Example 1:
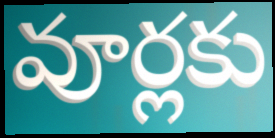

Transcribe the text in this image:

వూర్లకు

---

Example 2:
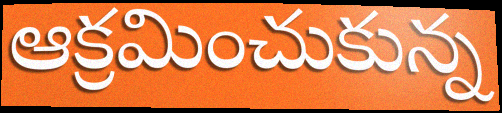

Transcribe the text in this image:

ఆక్రమించుకున్న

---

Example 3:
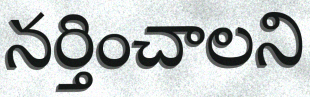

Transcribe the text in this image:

నర్తించాలని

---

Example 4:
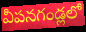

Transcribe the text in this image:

వీపనగండ్లలో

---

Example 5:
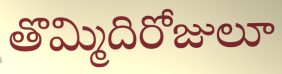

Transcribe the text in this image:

తొమ్మిదిరోజులూ